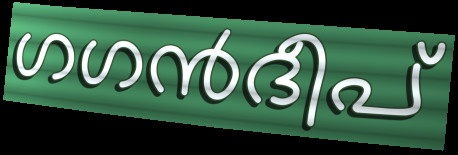
ഗഗൻദീപ്